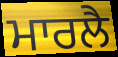
ਮਾਰਲੈ